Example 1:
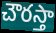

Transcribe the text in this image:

చౌరస్తా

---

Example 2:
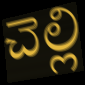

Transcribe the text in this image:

చెల్లి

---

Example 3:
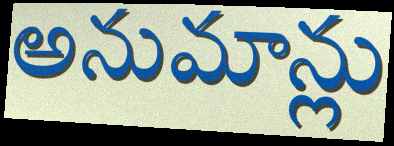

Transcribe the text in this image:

అనుమాన్లు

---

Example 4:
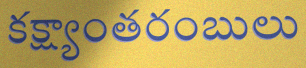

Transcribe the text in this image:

కక్ష్యాంతరంబులు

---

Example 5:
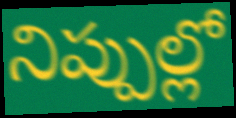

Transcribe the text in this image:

నిప్పుల్లో